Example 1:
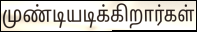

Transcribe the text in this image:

முண்டியடிக்கிறார்கள்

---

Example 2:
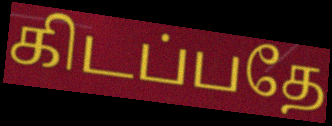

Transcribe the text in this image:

கிடப்பதே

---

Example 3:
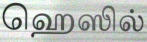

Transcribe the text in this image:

ஹெஸில்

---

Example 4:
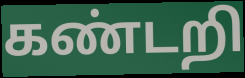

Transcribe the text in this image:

கண்டறி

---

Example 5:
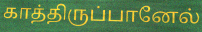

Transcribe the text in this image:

காத்திருப்பானேல்